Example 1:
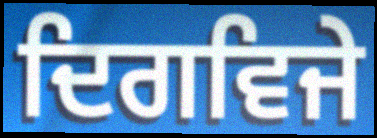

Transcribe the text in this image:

ਦਿਗਵਿਜੇ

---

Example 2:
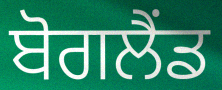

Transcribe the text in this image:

ਬੋਗਲੈਂਡ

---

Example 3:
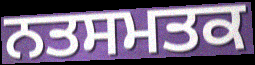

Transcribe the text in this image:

ਨਤਸਮਤਕ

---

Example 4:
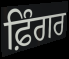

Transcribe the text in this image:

ਫ਼ਿੰਗਰ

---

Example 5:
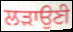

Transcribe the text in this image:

ਲੜਾਉਣੀ